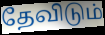
தேவிடும்